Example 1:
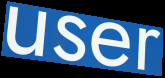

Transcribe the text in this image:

user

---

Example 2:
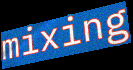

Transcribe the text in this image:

mixing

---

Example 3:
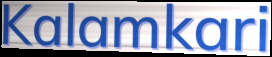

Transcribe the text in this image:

Kalamkari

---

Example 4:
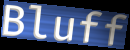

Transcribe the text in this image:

Bluff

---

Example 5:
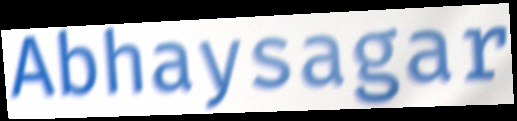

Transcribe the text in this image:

Abhaysagar